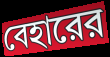
বেহারের